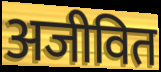
अजीवित